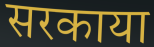
सरकाया